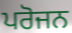
ਪਰੋਜਨ